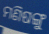
ମଣିଷଙ୍ଗୁ